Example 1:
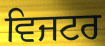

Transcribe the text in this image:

ਵਿਜਟਰ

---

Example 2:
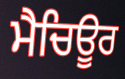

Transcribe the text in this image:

ਮੈਚਿਊਰ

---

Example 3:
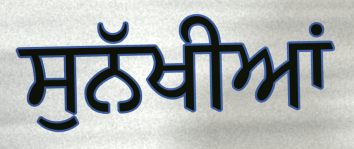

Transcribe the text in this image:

ਸੁਨੱਖੀਆਂ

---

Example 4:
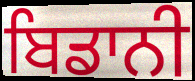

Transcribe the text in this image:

ਬਿਡਾਨੀ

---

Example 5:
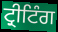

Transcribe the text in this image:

ਟ੍ਰੀਟਿੰਗ